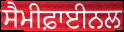
ਸੈਮੀਫ਼ਾਈਨਲ